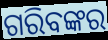
ଗରିବଙ୍କର